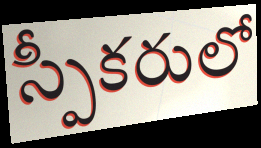
స్పీకరులో